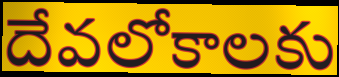
దేవలోకాలకు